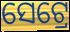
ସେଟ୍ରେ